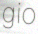
gio